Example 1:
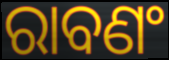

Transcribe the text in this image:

ରାବଣଂ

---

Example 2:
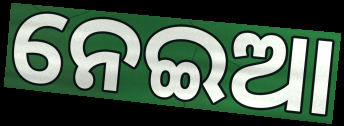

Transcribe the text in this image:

ନେଇଆ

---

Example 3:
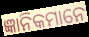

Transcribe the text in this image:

ଜ୍ଞାନିକମାନେ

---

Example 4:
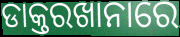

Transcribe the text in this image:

ଡାକ୍ତରଖାନାରେ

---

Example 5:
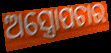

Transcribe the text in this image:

ଅସ୍ତ୍ରୋପଚାର